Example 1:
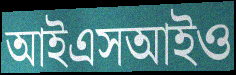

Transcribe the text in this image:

আইএসআইও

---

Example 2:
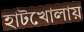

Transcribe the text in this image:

হাটখোলায়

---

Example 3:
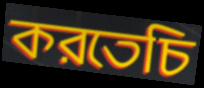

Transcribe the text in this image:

করতেচি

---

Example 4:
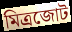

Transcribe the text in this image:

মিত্রজোট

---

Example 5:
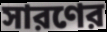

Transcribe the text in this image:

সারণের